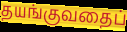
தயங்குவதைப்